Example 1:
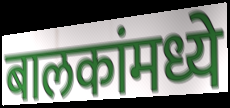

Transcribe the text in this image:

बालकांमध्ये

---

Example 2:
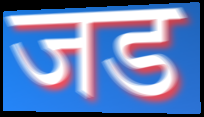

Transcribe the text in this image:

जड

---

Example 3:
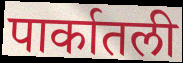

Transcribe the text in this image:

पार्कातली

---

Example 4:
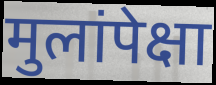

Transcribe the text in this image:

मुलांपेक्षा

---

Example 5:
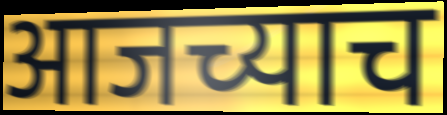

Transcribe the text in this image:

आजच्याच